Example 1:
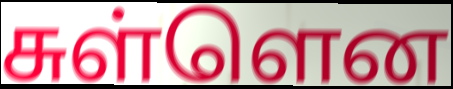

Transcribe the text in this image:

சுள்ளென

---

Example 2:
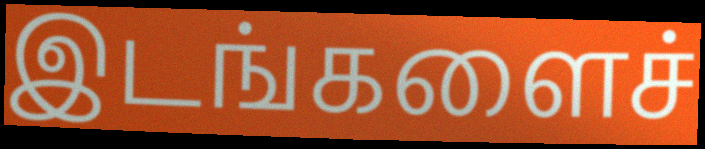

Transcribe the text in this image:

இடங்களைச்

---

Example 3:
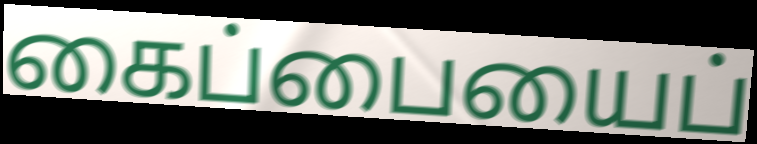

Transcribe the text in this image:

கைப்பையைப்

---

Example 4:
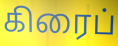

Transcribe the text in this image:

கிரைப்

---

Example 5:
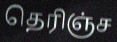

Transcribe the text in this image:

தெரிஞ்ச